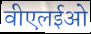
वीएलईओ